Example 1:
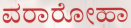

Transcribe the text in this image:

ವರಾರೋಹಾ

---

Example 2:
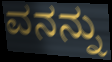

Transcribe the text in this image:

ವನನ್ನು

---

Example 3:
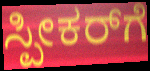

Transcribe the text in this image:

ಸ್ಪೀಕರ್‌ಗೆ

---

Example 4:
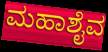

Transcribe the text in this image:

ಮಹಾಶೈವ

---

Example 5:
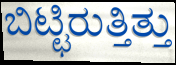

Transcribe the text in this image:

ಬಿಟ್ಟಿರುತ್ತಿತ್ತು